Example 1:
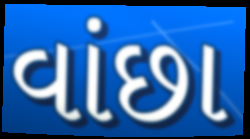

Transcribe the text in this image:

વાંછા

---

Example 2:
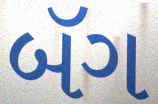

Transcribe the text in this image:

બૅગ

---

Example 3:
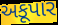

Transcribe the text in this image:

અકૂપાર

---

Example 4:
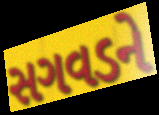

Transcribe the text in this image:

સગવડને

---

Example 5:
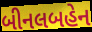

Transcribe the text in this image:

બીનલબહેન